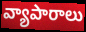
వ్యాపారాలు